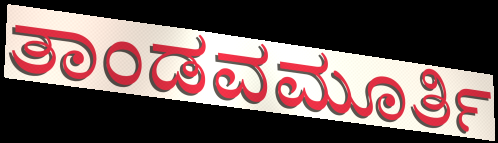
ತಾಂಡವಮೂರ್ತಿ